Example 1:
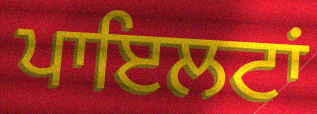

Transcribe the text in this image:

ਪਾਇਲਟਾਂ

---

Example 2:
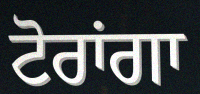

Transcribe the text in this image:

ਟੋਰਾਂਗਾ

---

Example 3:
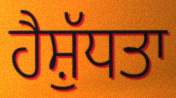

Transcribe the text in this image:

ਹੈਸ਼ੁੱਧਤਾ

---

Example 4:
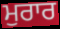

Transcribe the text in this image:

ਮੁਰਾਰ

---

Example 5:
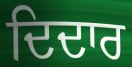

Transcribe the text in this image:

ਦਿਦਾਰ